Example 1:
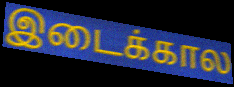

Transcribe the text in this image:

இடைக்கால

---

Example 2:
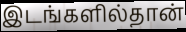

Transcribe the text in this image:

இடங்களில்தான்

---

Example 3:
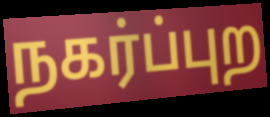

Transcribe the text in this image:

நகர்ப்புற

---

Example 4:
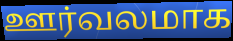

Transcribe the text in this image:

ஊர்வலமாக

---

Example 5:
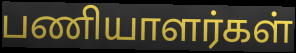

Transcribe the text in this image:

பணியாளர்கள்